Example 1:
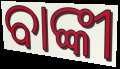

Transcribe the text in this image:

ବାଙ୍କୀ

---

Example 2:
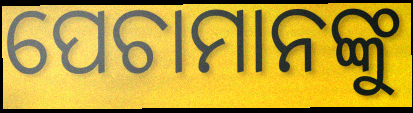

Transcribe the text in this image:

ପେଚାମାନଙ୍କୁ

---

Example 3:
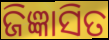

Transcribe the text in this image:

ଜିଜ୍ଞାସିତ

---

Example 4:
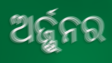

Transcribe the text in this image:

ଅର୍ଜ୍ଜୁନର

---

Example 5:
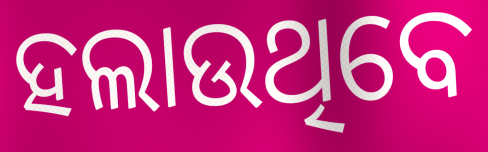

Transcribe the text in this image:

ହଲାଉଥିବେ